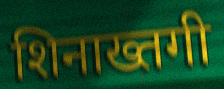
शिनाख्तगी